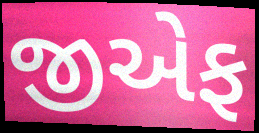
જીએફ